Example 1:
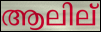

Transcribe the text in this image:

ആലില്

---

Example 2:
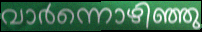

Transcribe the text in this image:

വാർന്നൊഴിഞ്ഞു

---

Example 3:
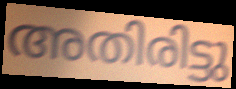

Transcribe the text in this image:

അതിരിട്ടു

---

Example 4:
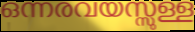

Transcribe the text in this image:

ഒന്നരവയസ്സുള്ള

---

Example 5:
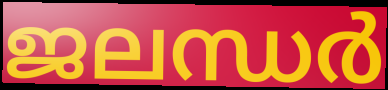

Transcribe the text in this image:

ജലന്ധർ